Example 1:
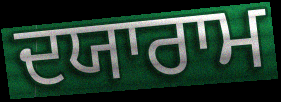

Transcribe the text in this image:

ਦਯਾਰਾਮ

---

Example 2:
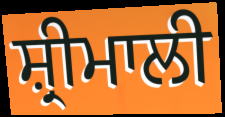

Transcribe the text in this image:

ਸ਼੍ਰੀਮਾਲੀ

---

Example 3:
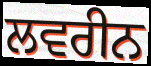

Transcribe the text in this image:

ਲਵਰੀਨ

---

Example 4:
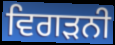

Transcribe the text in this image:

ਵਿਗੜਨੀ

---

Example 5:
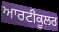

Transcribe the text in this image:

ਆਰਟੀਕੂਲਰ